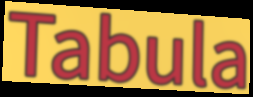
Tabula